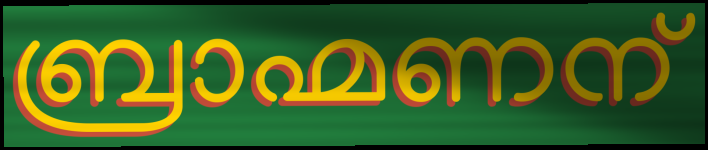
ബ്രാഹ്മണന്